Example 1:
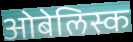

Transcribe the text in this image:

ओबेलिस्क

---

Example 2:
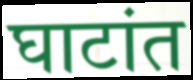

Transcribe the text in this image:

घाटांत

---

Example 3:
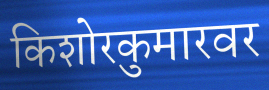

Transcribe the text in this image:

किशोरकुमारवर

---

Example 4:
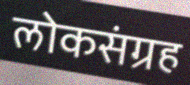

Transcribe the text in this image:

लोकसंग्रह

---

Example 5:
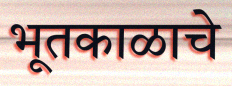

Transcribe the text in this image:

भूतकाळाचे